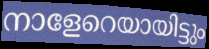
നാളേറെയായിട്ടും